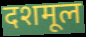
दशमूल